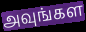
அவுங்கள